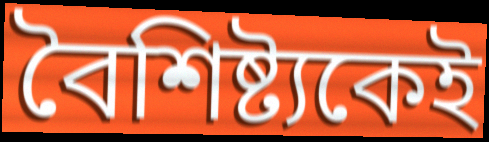
বৈশিষ্ট্যকেই